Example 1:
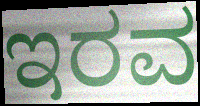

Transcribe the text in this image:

ಇರವ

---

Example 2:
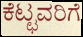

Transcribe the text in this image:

ಕೆಟ್ಟವರಿಗೆ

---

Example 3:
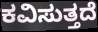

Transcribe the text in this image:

ಕವಿಸುತ್ತದೆ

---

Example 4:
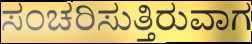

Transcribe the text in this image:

ಸಂಚರಿಸುತ್ತಿರುವಾಗ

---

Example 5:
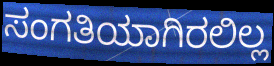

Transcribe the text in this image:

ಸಂಗತಿಯಾಗಿರಲಿಲ್ಲ